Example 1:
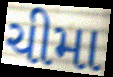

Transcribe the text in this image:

ચીમા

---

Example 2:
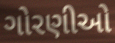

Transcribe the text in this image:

ગોરણીઓ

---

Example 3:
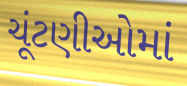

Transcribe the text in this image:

ચૂંટણીઓમાં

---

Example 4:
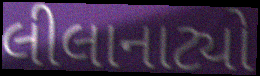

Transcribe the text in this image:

લીલાનાટ્યો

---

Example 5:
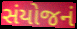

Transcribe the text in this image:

સંયોજનં